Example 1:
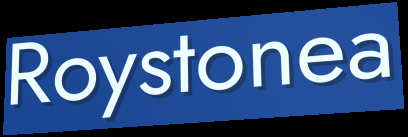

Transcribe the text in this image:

Roystonea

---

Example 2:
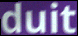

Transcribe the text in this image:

duit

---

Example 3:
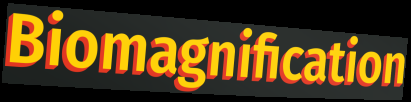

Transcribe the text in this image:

Biomagnification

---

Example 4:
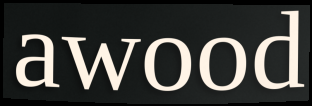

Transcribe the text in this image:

awood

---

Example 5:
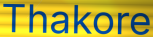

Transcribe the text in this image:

Thakore